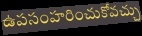
ఉపసంహరించుకోవచ్చు